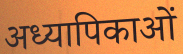
अध्यापिकाओं